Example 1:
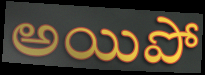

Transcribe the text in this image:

అయిపో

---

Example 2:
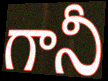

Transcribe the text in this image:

గానీ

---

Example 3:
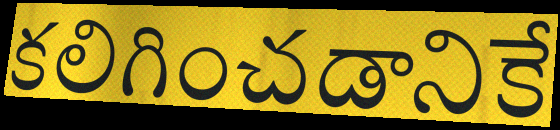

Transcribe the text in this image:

కలిగించడానికే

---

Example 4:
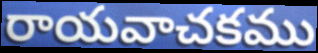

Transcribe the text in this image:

రాయవాచకము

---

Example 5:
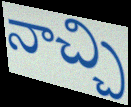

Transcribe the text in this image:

నాచ్చి